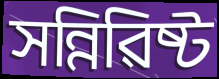
সন্নিৱিষ্ট